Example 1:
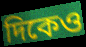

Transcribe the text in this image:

দিকেও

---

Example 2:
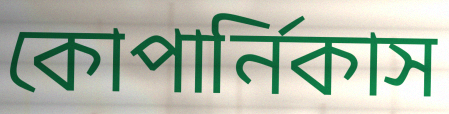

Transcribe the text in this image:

কোপার্নিকাস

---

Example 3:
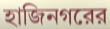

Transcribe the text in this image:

হাজিনগরের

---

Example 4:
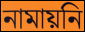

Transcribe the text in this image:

নামায়নি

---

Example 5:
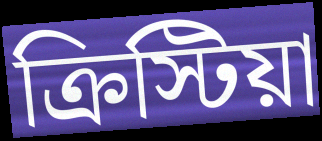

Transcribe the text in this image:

ক্রিস্টিয়া